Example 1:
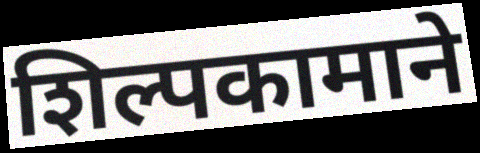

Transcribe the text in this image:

शिल्पकामाने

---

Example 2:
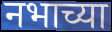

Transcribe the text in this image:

नभाच्या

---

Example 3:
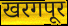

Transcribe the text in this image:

खरगपूर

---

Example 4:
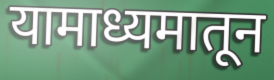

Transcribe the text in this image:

यामाध्यमातून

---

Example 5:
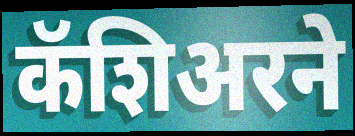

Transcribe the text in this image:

कॅशिअरने